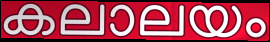
കലാലയം